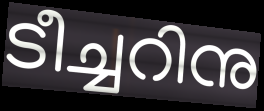
ടീച്ചറിനു